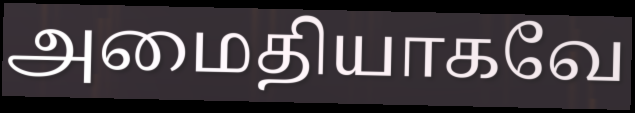
அமைதியாகவே